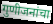
गुणीजनांचा